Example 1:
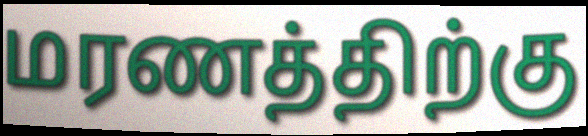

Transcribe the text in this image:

மரணத்திற்கு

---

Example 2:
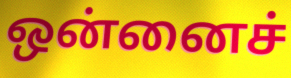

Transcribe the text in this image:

ஒன்னைச்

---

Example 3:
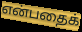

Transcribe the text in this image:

என்பதைக்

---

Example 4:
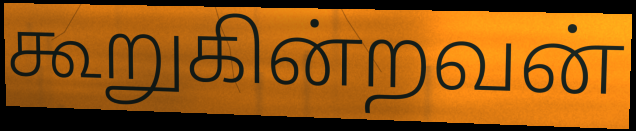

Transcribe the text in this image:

கூறுகின்றவன்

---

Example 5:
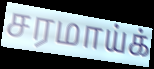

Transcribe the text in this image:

சரமாய்க்